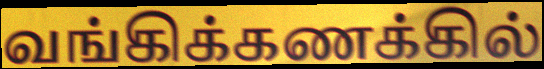
வங்கிக்கணக்கில்